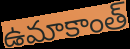
ఉమాకాంత్